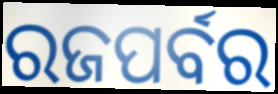
ରଜପର୍ବର